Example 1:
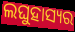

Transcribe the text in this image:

ଲଘୁହାସ୍ୟର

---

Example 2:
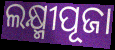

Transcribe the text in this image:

ଲକ୍ଷ୍ମୀପୂଜା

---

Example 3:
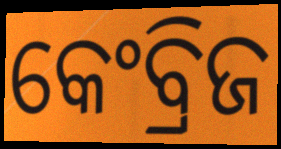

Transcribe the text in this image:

କେଂବ୍ରିଜ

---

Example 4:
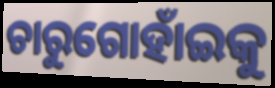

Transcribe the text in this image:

ଚାରୁଗୋହାଁଇକୁ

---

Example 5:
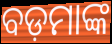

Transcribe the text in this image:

ବଡ଼ମାଙ୍କ